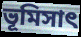
ভূমিসাৎ